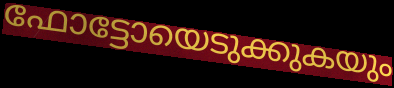
ഫോട്ടോയെടുക്കുകയും